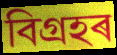
বিগ্ৰহৰ